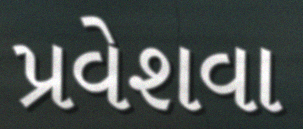
પ્રવેશવા